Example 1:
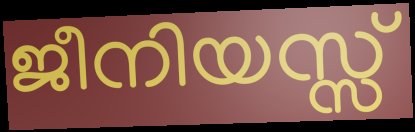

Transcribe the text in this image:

ജീനിയസ്സ്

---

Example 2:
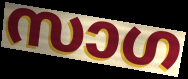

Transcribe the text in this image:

സാഗ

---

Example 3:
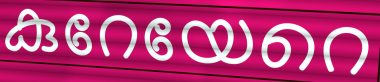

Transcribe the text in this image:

കുറേയേറെ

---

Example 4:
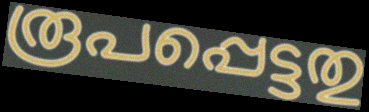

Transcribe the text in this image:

രൂപപ്പെട്ടതു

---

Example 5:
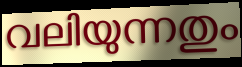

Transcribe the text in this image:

വലിയുന്നതും